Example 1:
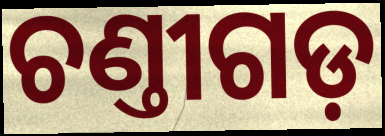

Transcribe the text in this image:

ଚଣ୍ତୀଗଡ଼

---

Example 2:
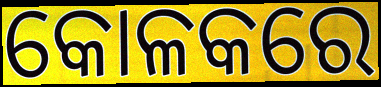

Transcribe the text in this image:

କୋଳକରେ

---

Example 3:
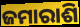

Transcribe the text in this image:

ଜମାରାଶି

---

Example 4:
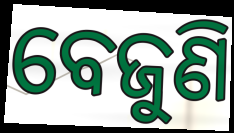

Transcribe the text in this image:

ବେଜୁଣି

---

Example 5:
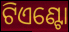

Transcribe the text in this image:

ଟିଏଣ୍ଟୋ